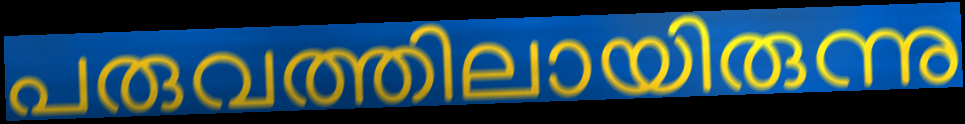
പരുവത്തിലായിരുന്നു